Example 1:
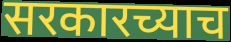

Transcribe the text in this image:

सरकारच्याच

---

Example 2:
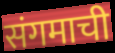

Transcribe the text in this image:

संगमाची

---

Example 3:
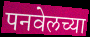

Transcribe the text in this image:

पनवेलच्या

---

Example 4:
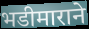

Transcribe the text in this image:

भडीमाराने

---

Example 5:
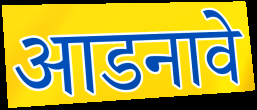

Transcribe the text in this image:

आडनावे